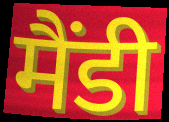
मैंडी